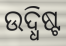
ଉଦ୍ଧିଷ୍ଟ